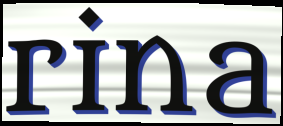
rina